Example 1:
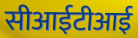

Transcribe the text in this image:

सीआईटीआई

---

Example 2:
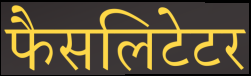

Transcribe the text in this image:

फैसलिटेटर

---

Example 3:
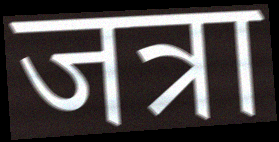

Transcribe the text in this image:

जत्रा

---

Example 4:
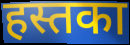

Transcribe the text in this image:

हस्तका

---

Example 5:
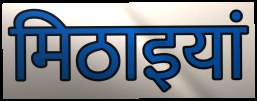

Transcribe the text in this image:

मिठाइयां